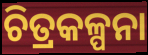
ଚିତ୍ରକଳ୍ପନା